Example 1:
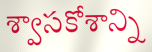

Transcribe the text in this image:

శ్వాసకోశాన్ని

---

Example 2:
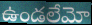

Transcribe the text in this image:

ఉండలేమో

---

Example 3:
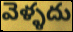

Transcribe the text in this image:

వెళ్ళదు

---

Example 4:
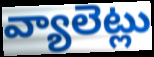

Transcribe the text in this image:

వ్యాలెట్లు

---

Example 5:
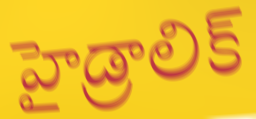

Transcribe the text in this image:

హైడ్రాలిక్